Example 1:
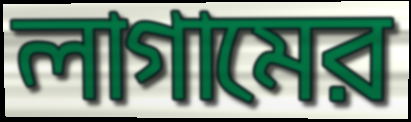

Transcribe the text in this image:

লাগামের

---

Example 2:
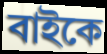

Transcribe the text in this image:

বাইকে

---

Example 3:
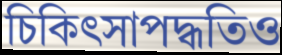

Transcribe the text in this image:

চিকিৎসাপদ্ধতিও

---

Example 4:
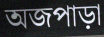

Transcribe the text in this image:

অজপাড়া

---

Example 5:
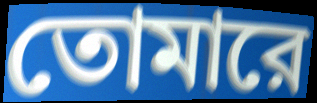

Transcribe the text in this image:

তোমারে